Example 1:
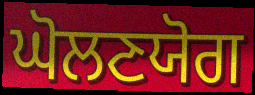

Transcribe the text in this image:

ਘੋਲਣਯੋਗ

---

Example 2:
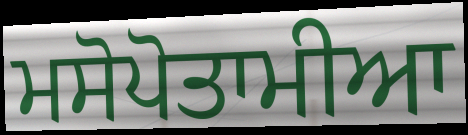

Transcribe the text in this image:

ਮਸੋਪੋਤਾਮੀਆ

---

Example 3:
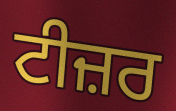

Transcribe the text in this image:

ਟੀਜ਼ਰ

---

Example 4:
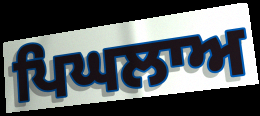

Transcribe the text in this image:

ਪਿਘਲਾਅ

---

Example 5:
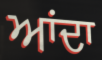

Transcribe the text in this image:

ਆਂਦਾ